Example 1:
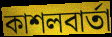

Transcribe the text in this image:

কাশলবার্তা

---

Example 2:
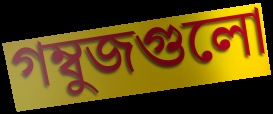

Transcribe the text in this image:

গম্বুজগুলো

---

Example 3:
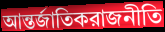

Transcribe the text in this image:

আন্তর্জাতিকরাজনীতি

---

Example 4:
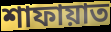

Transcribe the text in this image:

শাফায়াত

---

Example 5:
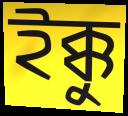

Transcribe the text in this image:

ইক্কু